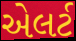
એલર્ટ